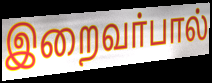
இறைவர்பால்